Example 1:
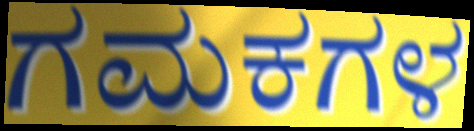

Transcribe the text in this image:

ಗಮಕಗಳ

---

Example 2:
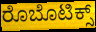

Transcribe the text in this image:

ರೊಬೊಟಿಕ್ಸ್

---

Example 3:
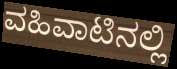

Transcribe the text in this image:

ವಹಿವಾಟಿನಲ್ಲಿ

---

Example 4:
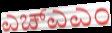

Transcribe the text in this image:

ಎಚ್ಎಎಂ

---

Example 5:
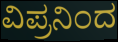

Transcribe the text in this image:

ವಿಪ್ರನಿಂದ